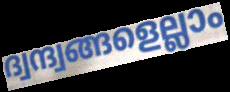
ദ്വന്ദ്വങ്ങളെല്ലാം